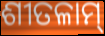
ଶୀତଳାମ୍